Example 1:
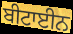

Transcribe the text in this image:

ਬੀਟਾਈਨ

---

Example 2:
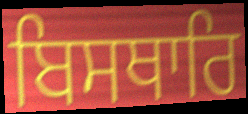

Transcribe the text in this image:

ਬਿਸਥਾਰਿ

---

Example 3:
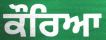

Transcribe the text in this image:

ਕੌਰਿਆ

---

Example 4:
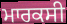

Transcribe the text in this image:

ਮਾਰਕਸੀ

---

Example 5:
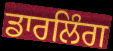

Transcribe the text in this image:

ਡਾਰਲਿੰਗ